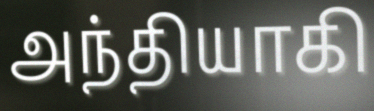
அந்தியாகி